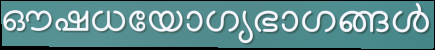
ഔഷധയോഗ്യഭാഗങ്ങൾ